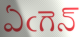
ఏఁగెన్